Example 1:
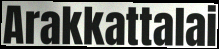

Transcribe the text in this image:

Arakkattalai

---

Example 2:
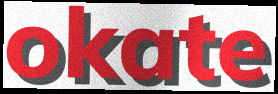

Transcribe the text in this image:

okate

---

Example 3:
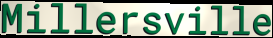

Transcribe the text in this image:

Millersville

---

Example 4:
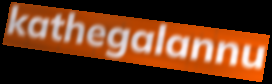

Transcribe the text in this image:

kathegalannu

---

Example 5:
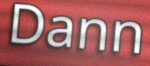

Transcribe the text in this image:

Dann